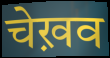
चेख़व